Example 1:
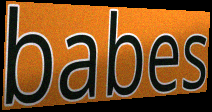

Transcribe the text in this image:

babes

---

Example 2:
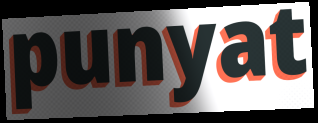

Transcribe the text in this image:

punyat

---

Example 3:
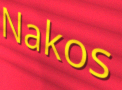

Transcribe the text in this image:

Nakos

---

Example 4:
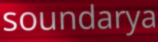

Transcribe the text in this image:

soundarya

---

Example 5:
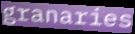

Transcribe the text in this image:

granaries